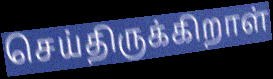
செய்திருக்கிறாள்